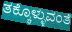
ತಕ್ಕೊಳ್ಳುವಂತೆ